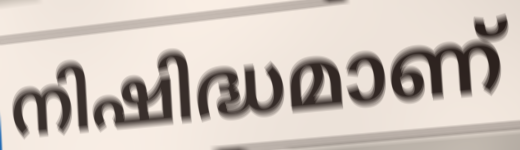
നിഷിദ്ധമാണ്